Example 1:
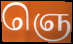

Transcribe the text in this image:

ஞெ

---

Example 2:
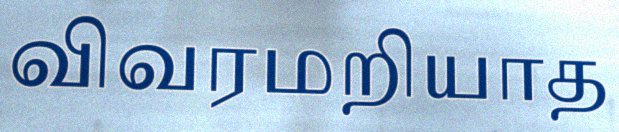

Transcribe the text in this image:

விவரமறியாத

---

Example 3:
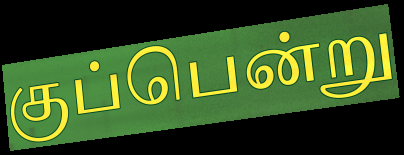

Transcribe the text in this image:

குப்பென்று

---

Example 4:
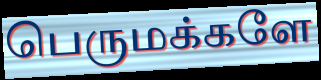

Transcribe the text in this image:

பெருமக்களே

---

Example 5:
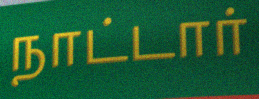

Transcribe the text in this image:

நாட்டார்